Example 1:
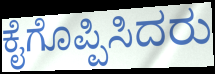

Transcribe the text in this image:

ಕೈಗೊಪ್ಪಿಸಿದರು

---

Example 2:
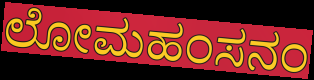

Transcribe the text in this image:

ಲೋಮಹಂಸನಂ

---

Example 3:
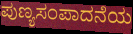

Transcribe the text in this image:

ಪುಣ್ಯಸಂಪಾದನೆಯ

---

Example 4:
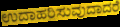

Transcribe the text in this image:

ಉದಾಹರಿಸುವುದಾದರೆ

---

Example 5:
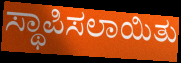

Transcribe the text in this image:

ಸ್ಥಾಪಿಸಲಾಯಿತು